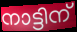
നാട്ടിന്